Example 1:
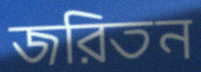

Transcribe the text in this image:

জরিতন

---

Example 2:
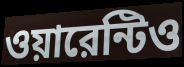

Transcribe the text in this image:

ওয়ারেন্টিও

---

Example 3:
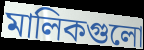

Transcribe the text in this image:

মালিকগুলো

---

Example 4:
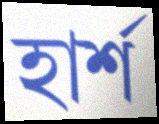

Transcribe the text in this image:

হার্শ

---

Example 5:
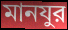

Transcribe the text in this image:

মানযুর